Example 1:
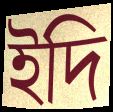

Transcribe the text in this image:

ইদি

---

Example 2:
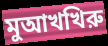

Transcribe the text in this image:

মুআখখিরু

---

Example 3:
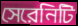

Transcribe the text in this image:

সেরেনিটি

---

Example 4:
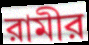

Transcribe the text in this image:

রামীর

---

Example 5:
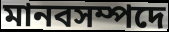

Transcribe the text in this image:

মানবসম্পদে